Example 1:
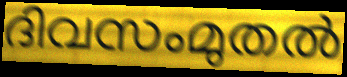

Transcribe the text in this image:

ദിവസംമുതൽ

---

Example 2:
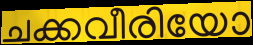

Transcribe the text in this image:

ചക്കവീരിയോ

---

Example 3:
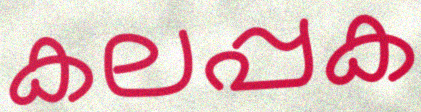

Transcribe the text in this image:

കലപ്പക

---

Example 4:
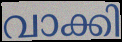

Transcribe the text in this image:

വാക്കി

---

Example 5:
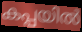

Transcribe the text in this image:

കപ്പയിൽ